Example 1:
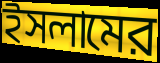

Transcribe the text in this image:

ইসলামের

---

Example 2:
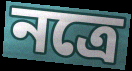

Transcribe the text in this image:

নত্রে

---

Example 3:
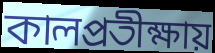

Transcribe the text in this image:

কালপ্রতীক্ষায়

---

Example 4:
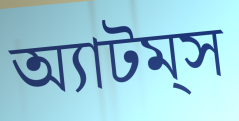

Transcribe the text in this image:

অ্যাটম্‌স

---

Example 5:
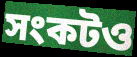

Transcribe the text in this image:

সংকটও